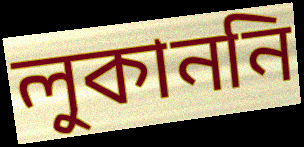
লুকাননি